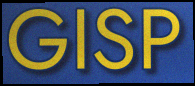
GISP